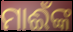
ମାଈଁଙ୍କ